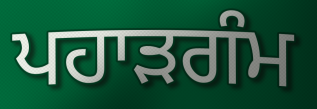
ਪਹਾੜਗੰਮ